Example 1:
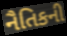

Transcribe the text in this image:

નૈતિકની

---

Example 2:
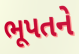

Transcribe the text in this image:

ભૂપતને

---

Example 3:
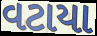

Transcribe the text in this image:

વટાયા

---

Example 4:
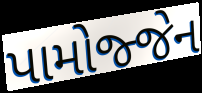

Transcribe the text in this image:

પામોજ્જેન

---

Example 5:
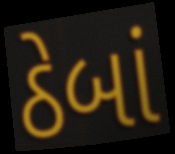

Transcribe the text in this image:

ઠેબાં